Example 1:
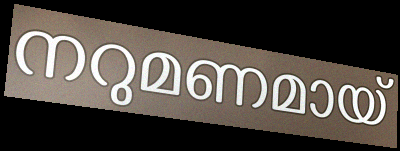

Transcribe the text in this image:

നറുമണമായ്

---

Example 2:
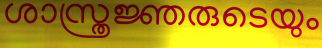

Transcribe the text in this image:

ശാസ്ത്രജ്ഞരുടെയും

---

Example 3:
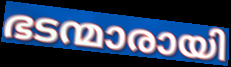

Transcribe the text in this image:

ഭടന്മാരായി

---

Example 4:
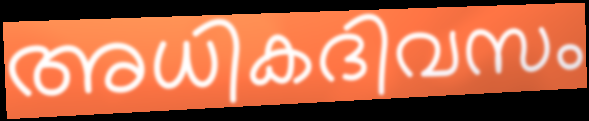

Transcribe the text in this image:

അധികദിവസം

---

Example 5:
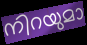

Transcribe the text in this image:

നിറയുമാ